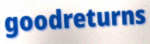
goodreturns